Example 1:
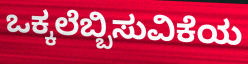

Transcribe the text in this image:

ಒಕ್ಕಲೆಬ್ಬಿಸುವಿಕೆಯ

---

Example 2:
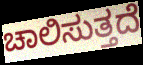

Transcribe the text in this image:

ಚಾಲಿಸುತ್ತದೆ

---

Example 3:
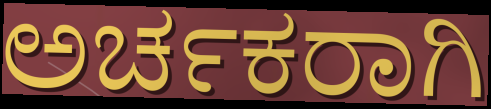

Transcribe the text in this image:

ಅರ್ಚಕರಾಗಿ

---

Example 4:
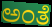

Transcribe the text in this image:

ಅಂತೆ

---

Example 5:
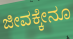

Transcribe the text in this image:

ಜೀವಕ್ಕೇನೂ